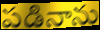
పడినాను